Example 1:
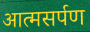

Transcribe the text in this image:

आत्मसर्पण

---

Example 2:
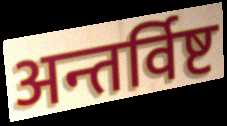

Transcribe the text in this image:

अन्तर्विष्ट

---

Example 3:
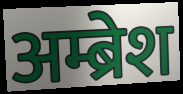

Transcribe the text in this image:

अम्ब्रेश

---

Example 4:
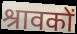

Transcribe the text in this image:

श्रावकों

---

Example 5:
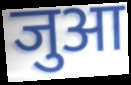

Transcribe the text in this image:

जुआ